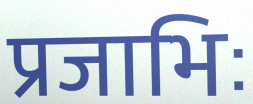
प्रजाभिः